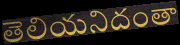
తెలియనిదంతా